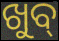
ଖୁବ୍